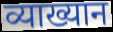
व्याख्यान